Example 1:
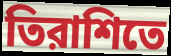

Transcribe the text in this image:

তিরাশিতে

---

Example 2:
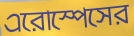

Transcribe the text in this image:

এরোস্পেসের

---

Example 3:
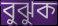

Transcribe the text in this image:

বুঝুক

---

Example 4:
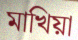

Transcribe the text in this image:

মাখিয়া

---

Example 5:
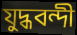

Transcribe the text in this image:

যুদ্ধবন্দী